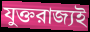
যুক্তরাজ্যই